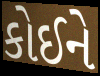
કોઈને